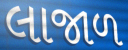
લાજાળ